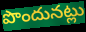
పొందునట్లు